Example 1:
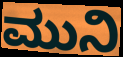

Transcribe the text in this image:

ಮುನಿ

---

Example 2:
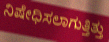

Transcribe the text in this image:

ನಿಷೇಧಿಸಲಾಗುತ್ತಿತ್ತು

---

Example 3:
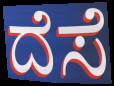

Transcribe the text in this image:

ದೆಸೆ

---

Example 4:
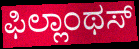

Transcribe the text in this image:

ಫಿಲ್ಲಾಂಥಸ್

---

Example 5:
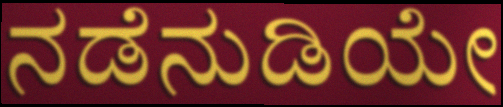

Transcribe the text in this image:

ನಡೆನುಡಿಯೇ